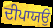
ਦੀਪਾਯਉ